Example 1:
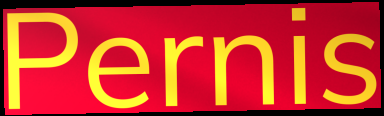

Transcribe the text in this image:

Pernis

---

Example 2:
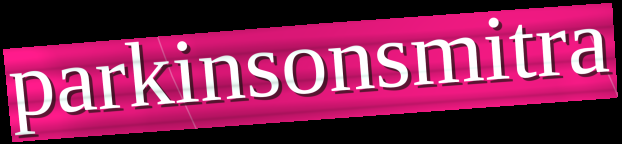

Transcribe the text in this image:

parkinsonsmitra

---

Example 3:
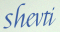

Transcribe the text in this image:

shevti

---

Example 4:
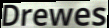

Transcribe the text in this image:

Drewes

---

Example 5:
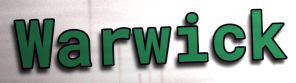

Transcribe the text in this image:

Warwick